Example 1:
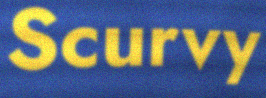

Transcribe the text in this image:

Scurvy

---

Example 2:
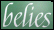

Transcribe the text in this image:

belies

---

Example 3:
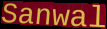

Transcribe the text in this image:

Sanwal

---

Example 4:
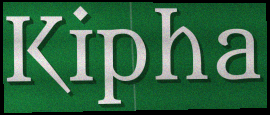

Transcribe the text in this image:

Kipha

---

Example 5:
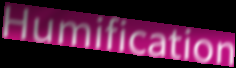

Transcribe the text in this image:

Humification